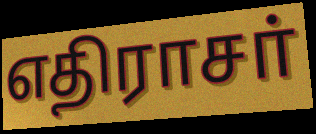
எதிராசர்